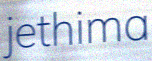
jethima